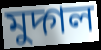
মুদ্গল